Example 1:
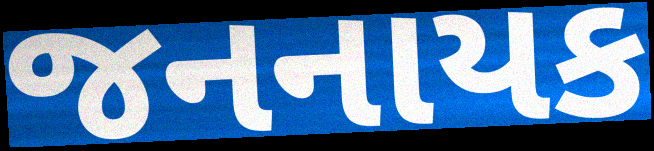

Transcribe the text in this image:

જનનાયક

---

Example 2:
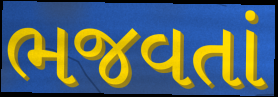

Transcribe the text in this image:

ભજવતાં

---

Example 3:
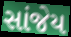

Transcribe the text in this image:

સાંજેય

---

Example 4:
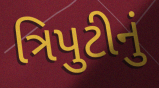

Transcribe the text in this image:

ત્રિપુટીનું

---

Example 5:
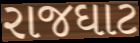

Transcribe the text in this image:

રાજઘાટ